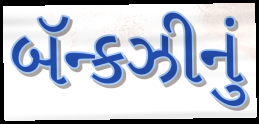
બૅન્કઝીનું